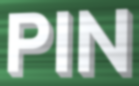
PIN